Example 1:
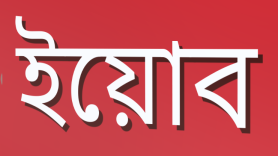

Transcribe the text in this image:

ইয়োব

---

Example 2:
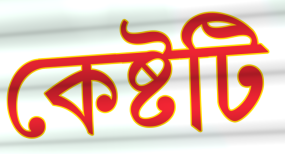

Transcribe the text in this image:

কেষ্টটি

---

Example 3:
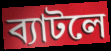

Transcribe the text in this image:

ব্যাটলে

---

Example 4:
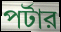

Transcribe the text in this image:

পর্টার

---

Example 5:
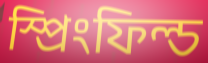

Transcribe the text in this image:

স্প্রিংফিল্ড